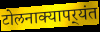
टोलनाक्यापर्यंत